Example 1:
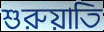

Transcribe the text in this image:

শুরুয়াতি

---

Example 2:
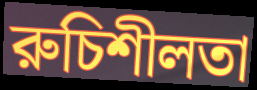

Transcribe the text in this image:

রুচিশীলতা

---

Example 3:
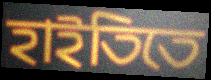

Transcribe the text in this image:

হাইতিতে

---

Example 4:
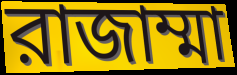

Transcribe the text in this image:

রাজাম্মা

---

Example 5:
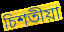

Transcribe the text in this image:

চিশতীয়া